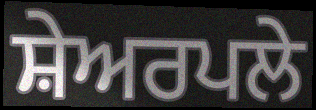
ਸ਼ੇਅਰਪਲੇ